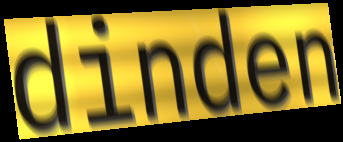
dinden